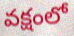
వక్షంలో